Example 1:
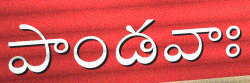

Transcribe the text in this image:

పాండవాః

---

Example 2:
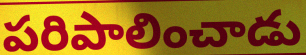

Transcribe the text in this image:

పరిపాలించాడు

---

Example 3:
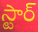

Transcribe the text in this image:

స్టార్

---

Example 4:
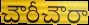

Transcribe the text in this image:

చౌరీచౌరా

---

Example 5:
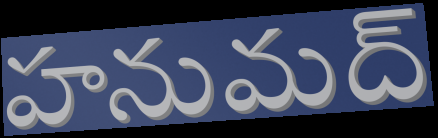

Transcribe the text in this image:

హనుమద్